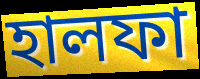
হালফা